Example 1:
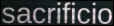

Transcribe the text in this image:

sacrificio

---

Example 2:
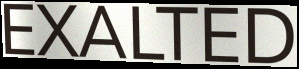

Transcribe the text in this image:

EXALTED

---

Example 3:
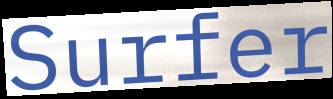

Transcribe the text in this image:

Surfer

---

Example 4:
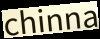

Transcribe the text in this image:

chinna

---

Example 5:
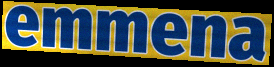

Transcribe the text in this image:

emmena